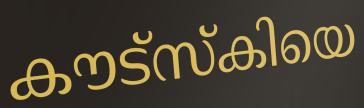
കൗട്സ്കിയെ